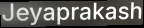
Jeyaprakash